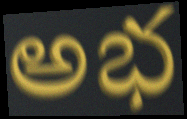
అభ